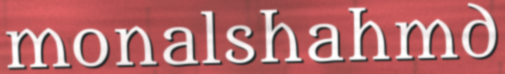
monalshahmd